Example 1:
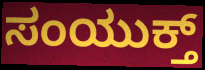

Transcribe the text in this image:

ಸಂಯುಕ್ತ್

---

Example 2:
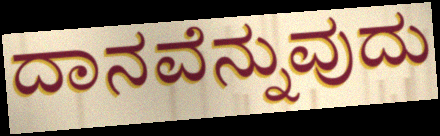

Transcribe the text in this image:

ದಾನವೆನ್ನುವುದು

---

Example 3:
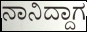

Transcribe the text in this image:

ನಾನಿದ್ದಾಗ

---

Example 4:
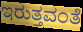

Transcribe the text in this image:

ಇರುತ್ತವಂತೆ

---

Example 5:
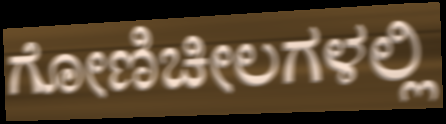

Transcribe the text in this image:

ಗೋಣಿಚೀಲಗಳಲ್ಲಿ